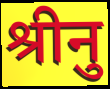
श्रीनु